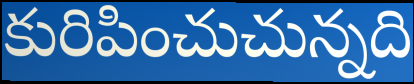
కురిపించుచున్నది